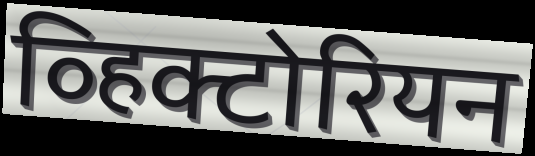
व्हिक्टोरियन